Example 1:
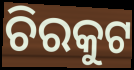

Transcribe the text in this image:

ଚିରକୁଟ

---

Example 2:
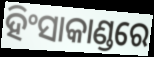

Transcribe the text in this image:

ହିଂସାକାଣ୍ଡରେ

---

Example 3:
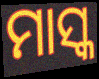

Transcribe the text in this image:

ମାସ୍କ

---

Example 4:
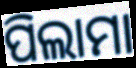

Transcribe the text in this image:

ପିଲାମା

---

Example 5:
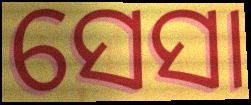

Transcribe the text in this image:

ସେସା